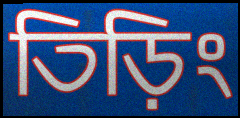
তিড়িং